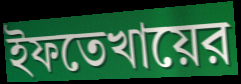
ইফতেখায়ের